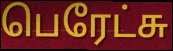
பெரேட்சு